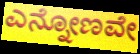
ಎನ್ನೋಣವೇ